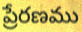
ప్రేరణము